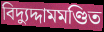
বিদ্যুদ্দামমণ্ডিত